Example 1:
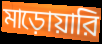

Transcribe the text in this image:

মাড়োয়ারি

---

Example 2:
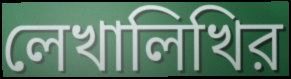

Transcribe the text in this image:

লেখালিখির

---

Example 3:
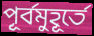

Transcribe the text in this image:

পূর্বমুহূর্তে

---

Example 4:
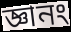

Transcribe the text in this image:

জ্ঞানং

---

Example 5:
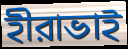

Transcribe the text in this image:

হীরাভাই